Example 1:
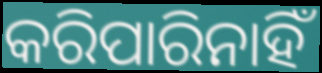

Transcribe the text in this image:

କରିପାରିନାହିଁ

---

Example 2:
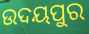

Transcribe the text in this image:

ଉଦୟପୁର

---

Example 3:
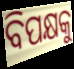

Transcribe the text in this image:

ବିପକ୍ଷକୁ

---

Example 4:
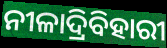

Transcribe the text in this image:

ନୀଳାଦ୍ରିବିହାରୀ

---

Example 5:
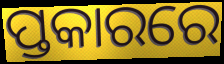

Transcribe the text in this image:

ପ୍ତକାରରେ